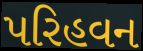
પરિહવન